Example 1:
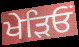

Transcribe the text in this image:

ਖੇੜਿਓਂ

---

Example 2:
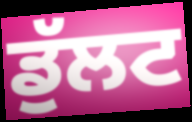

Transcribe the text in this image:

ਡੁੱਲਟ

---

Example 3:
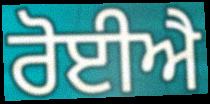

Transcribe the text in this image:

ਰੋਈਐ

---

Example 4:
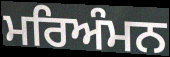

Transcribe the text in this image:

ਮਰਿਅੰਮਨ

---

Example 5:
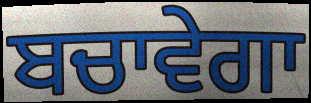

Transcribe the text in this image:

ਬਚਾਵੇਗਾ